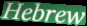
Hebrew